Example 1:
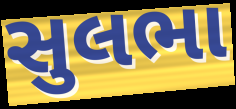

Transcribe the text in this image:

સુલભા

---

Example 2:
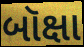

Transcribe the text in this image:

બૉક્ષા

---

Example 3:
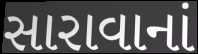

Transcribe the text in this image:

સારાવાનાં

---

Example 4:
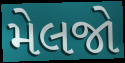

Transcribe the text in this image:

મેલજો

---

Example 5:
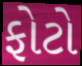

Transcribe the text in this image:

ફોટો